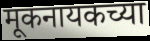
मूकनायकच्या